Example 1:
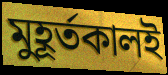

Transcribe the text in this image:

মুহূর্তকালই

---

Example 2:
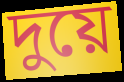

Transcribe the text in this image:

দুয়ে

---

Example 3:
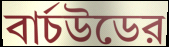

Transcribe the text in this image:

বার্চউডের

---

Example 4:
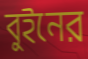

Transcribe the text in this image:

বুইনের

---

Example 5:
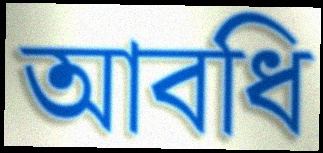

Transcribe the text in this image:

আবধি